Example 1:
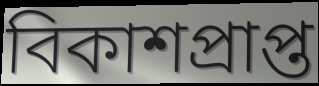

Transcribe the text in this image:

বিকাশপ্রাপ্ত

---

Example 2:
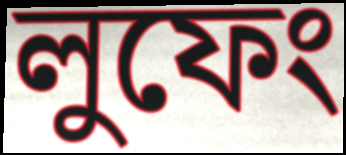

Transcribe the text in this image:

লুফেং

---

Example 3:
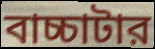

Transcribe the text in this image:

বাচ্চাটার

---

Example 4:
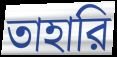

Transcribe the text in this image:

তাহারি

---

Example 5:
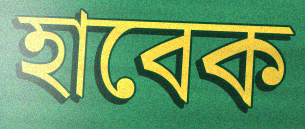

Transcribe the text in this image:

হাবেক